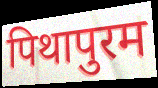
पिथापुरम